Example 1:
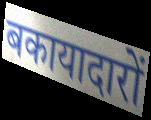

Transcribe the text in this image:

बकायादारों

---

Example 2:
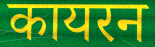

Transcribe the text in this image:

कायरन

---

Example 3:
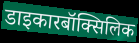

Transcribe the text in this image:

डाइकारबॉक्सिलिक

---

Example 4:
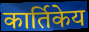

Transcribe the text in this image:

कार्तिकेय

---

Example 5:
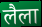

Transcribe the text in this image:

लैला